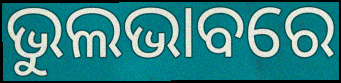
ଭୁଲଭାବରେ